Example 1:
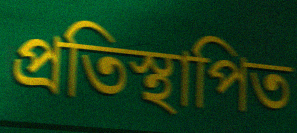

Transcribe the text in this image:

প্রতিস্থাপিত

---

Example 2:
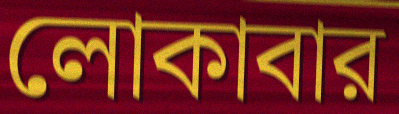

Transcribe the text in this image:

লোকাবার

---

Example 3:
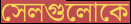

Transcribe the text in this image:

সেলগুলোকে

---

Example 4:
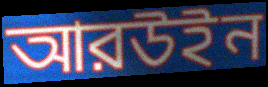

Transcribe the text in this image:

আরউইন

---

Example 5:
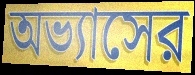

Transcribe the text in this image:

অভ্যাসের